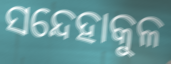
ସନ୍ଦେହାକୁଳ